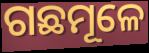
ଗଛମୂଳେ